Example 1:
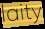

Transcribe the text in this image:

laity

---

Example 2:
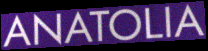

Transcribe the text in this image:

ANATOLIA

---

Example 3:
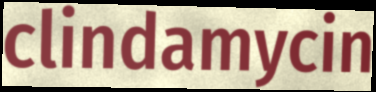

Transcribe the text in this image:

clindamycin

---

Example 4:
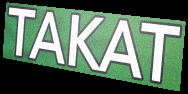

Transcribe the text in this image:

TAKAT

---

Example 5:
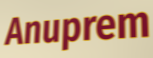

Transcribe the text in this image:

Anuprem